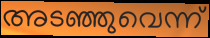
അടഞ്ഞുവെന്ന്